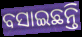
ବସାଇଛନ୍ତି